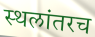
स्थलांतरच